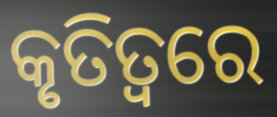
କୃତିତ୍ୱରେ